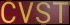
CVST